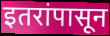
इतरांपासून